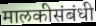
मालकीसंबंधी